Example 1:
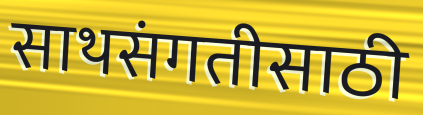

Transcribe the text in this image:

साथसंगतीसाठी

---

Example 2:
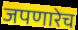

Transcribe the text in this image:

जपणारेच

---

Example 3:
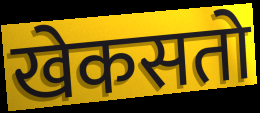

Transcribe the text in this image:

खेकसतो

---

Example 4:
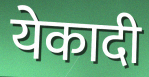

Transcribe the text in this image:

येकादी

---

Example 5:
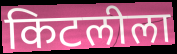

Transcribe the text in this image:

किटलीला